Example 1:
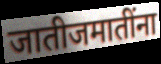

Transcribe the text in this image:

जातीजमातींना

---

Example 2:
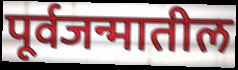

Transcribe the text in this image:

पूर्वजन्मातील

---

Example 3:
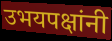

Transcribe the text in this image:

उभयपक्षांनी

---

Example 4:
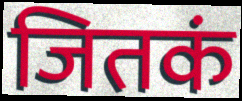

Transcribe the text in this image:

जितकं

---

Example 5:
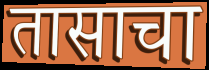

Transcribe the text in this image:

तासाचा